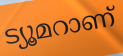
ട്യൂമറാണ്